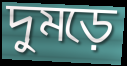
দুমড়ে